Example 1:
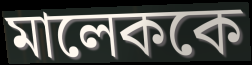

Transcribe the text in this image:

মালেককে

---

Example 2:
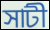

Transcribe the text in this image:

সাটী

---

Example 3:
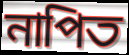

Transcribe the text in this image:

নাপিত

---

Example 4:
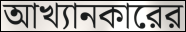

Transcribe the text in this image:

আখ্যানকারের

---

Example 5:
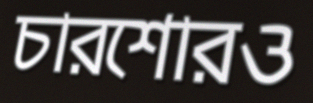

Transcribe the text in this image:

চারশোরও